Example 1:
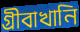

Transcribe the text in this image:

গ্রীবাখানি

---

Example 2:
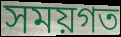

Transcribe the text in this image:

সময়গত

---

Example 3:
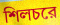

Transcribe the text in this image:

শিলচরে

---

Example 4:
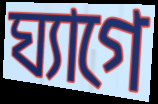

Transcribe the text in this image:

ঘ্যাগে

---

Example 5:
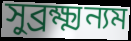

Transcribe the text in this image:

সুব্রক্ষ্মন্যম